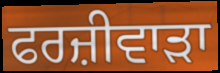
ਫਰਜ਼ੀਵਾੜਾ